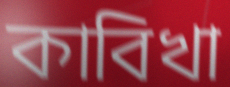
কাবিখা